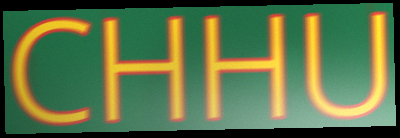
CHHU